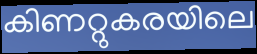
കിണറ്റുകരയിലെ